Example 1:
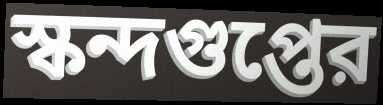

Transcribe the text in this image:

স্কন্দগুপ্তের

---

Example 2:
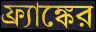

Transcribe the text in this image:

ফ্র্যাঙ্কের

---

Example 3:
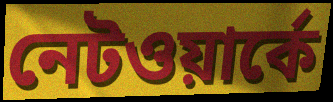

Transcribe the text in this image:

নেটওয়ার্কে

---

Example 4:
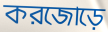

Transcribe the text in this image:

করজোড়ে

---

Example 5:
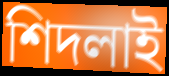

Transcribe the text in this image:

শিদলাই